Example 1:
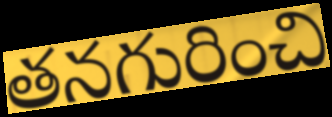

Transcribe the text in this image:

తనగురించి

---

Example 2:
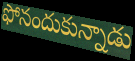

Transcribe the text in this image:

ఫోనందుకున్నాడు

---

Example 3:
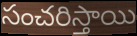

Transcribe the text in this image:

సంచరిస్తాయి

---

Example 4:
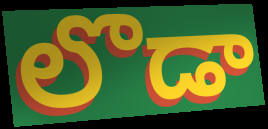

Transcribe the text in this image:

లొడా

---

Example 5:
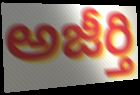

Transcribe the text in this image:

అజీర్తి